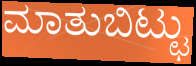
ಮಾತುಬಿಟ್ಟು